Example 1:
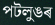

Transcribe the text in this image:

পটলুঙৰ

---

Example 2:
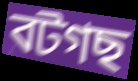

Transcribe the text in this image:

বটগছ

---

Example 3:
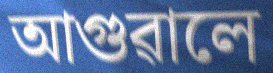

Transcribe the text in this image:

আগুৱালে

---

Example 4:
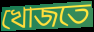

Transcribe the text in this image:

খোজতে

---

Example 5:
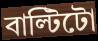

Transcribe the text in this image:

বাল্টিটো